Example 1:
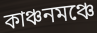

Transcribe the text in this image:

কাঞ্চনমঞ্চে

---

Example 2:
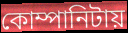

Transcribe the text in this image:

কোম্পানিটায়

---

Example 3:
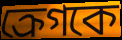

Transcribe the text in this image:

ক্রেগকে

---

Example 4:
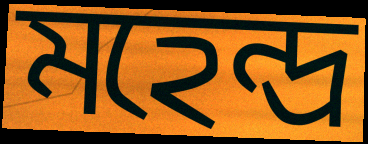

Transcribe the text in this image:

মহেন্দ্র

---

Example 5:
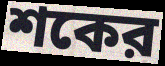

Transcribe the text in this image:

শকের